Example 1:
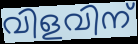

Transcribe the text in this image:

വിളവിന്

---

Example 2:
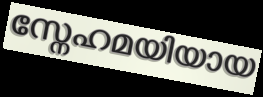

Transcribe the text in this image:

സ്നേഹമയിയായ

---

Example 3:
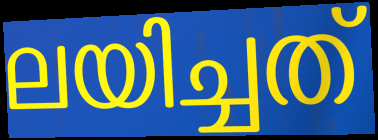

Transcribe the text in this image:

ലയിച്ചത്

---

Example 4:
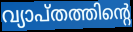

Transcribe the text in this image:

വ്യാപ്തത്തിന്റെ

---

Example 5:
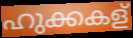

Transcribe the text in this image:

ഹുക്കകള്